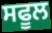
ਸਫੂਲ